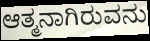
ಆತ್ಮನಾಗಿರುವನು